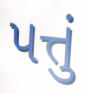
પત્તું